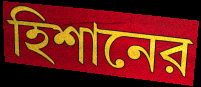
হিশানের